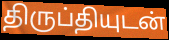
திருப்தியுடன்